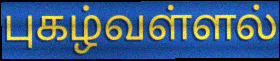
புகழ்வள்ளல்